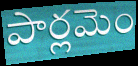
పార్లమెం